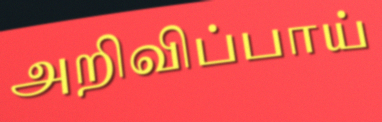
அறிவிப்பாய்